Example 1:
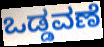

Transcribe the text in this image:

ಒಡ್ಡವಣೆ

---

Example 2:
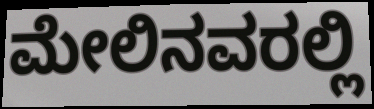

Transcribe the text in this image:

ಮೇಲಿನವರಲ್ಲಿ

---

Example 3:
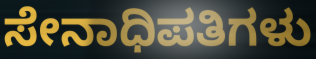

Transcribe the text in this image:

ಸೇನಾಧಿಪತಿಗಳು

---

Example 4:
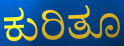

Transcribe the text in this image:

ಕುರಿತೂ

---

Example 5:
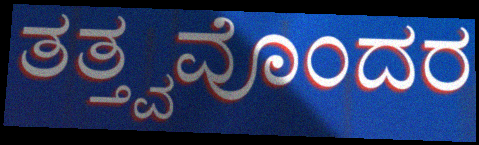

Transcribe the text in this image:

ತತ್ತ್ವವೊಂದರ